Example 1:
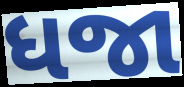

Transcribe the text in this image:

ધજા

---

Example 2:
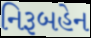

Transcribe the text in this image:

નિરૂબહેન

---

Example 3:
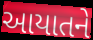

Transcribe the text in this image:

આયાતને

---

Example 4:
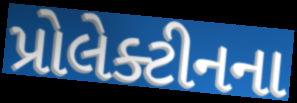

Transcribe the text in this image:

પ્રોલેક્ટીનના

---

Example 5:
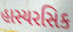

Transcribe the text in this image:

હાસ્યરસિક